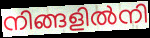
നിങ്ങളിൽനി